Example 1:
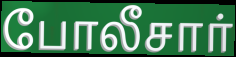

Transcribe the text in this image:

போலீசார்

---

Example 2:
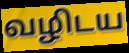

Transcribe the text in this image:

வழிடய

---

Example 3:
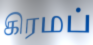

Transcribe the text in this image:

கிரமப்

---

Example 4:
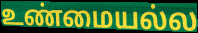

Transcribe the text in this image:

உண்மையல்ல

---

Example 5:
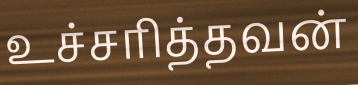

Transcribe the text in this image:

உச்சரித்தவன்